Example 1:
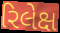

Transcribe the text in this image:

રિલેક્ષ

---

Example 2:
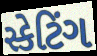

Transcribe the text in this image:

સ્કેટિંગ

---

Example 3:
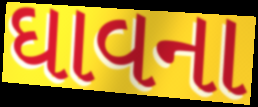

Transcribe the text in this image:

ઘાવના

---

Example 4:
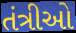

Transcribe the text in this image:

તંત્રીઓ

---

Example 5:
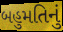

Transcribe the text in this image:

બહુમતિનું